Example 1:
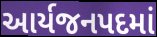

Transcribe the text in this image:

આર્યજનપદમાં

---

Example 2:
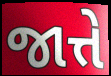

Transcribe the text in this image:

જાત્તે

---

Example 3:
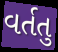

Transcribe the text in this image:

વર્તતુ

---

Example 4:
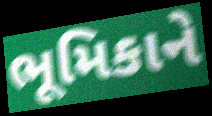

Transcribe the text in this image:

ભૂમિકાને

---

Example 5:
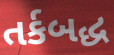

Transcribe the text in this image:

તર્કબદ્ધ